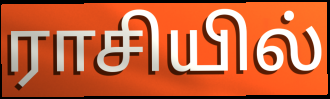
ராசியில்